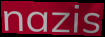
nazis